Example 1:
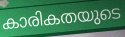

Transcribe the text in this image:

കാരികതയുടെ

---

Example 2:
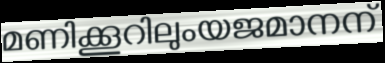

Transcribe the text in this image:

മണിക്കൂറിലുംയജമാനന്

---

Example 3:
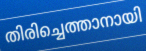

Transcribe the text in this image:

തിരിച്ചെത്താനായി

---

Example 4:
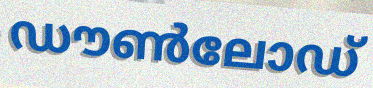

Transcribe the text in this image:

ഡൗൺലോഡ്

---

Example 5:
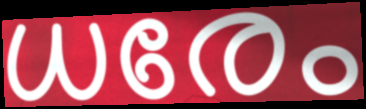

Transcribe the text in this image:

ധരേം